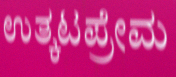
ಉತ್ಕಟಪ್ರೇಮ